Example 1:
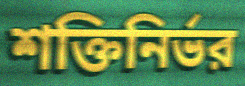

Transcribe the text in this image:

শক্তিনির্ভর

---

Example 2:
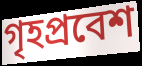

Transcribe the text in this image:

গৃহপ্রবেশ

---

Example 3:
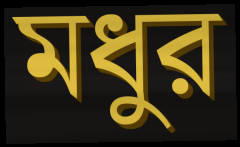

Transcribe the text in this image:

মধুর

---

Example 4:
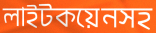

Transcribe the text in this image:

লাইটকয়েনসহ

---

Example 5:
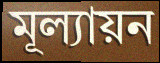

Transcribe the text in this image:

মূল্যায়ন